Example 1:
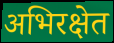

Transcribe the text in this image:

अभिरक्षेत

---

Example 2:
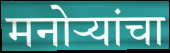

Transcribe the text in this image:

मनोर्‍यांचा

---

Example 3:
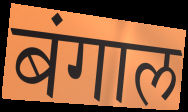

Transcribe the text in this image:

बंगाल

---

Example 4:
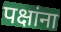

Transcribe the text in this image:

पक्षांना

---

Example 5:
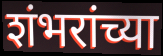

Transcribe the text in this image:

शंभरांच्या